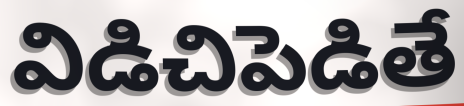
విడిచిపెడితే